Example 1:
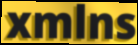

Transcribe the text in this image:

xmlns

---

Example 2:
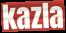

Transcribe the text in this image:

kazla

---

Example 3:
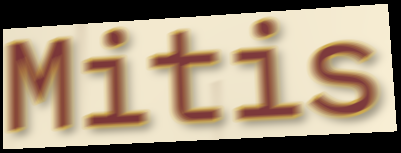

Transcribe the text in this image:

Mitis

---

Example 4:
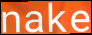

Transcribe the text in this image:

nake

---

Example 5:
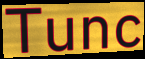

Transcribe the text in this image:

Tunc